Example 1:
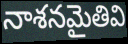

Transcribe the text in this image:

నాశనమైతివి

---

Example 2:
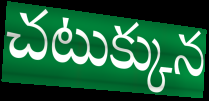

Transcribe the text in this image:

చటుక్కున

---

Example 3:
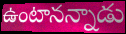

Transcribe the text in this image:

ఉంటానన్నాడు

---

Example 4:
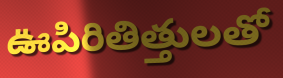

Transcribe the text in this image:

ఊపిరితిత్తులతో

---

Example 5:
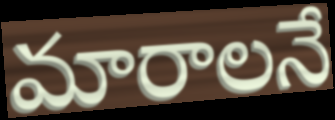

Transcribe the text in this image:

మారాలనే